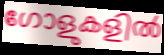
ഗോളുകളിൽ